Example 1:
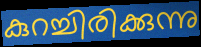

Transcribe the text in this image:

കുറച്ചിരിക്കുന്നു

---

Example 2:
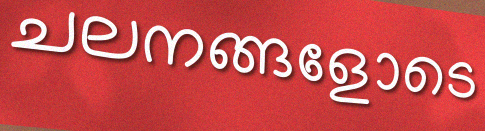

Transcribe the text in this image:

ചലനങ്ങളോടെ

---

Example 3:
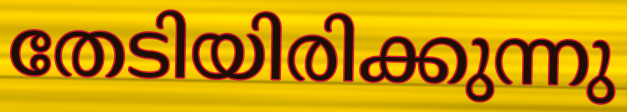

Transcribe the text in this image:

തേടിയിരിക്കുന്നു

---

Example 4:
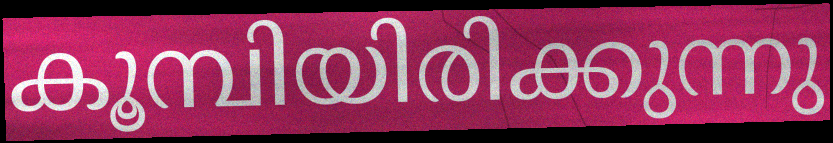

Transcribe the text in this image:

കൂമ്പിയിരിക്കുന്നു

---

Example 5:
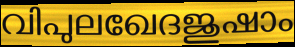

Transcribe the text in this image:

വിപുലഖേദജുഷാം